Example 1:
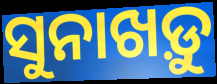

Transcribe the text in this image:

ସୁନାଖଡ଼ୁ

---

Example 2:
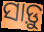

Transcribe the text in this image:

ସାଡ଼ୁ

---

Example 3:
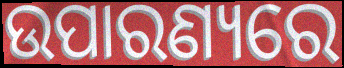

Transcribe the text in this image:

ଉପାରଣ୍ୟରେ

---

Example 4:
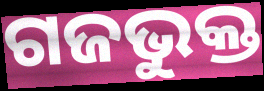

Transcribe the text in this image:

ଗଜଭୁକ୍ତ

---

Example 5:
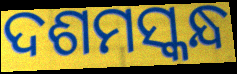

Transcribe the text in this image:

ଦଶମସ୍କନ୍ଧ